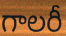
గాలరీ